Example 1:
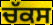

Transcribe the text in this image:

ਚੱਕਸ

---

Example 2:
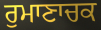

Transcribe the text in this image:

ਰੁਮਾਣਾਚਕ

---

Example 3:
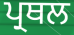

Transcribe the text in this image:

ਪ੍ਰਥਲ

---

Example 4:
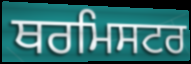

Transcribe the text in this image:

ਥਰਮਿਸਟਰ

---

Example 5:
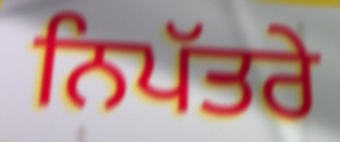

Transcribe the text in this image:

ਨਿਪੱਤਰੇ